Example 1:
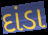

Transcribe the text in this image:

દાંડા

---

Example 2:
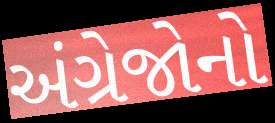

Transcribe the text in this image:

અંગ્રેજોનો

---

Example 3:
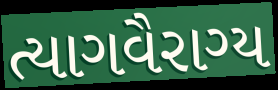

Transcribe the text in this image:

ત્યાગવૈરાગ્ય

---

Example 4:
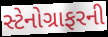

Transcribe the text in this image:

સ્ટેનોગ્રાફરની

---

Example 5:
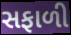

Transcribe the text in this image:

સફાળી